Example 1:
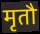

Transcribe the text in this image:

मृतौ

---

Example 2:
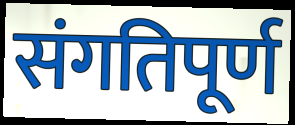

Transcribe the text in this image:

संगतिपूर्ण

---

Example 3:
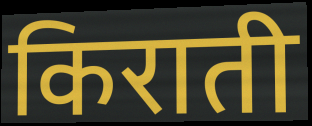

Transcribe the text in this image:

किराती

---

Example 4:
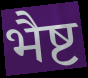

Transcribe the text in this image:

भैष्ट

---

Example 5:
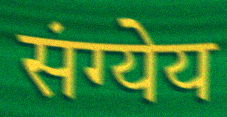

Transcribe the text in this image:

संग्येय